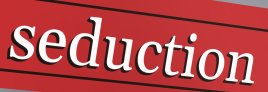
seduction